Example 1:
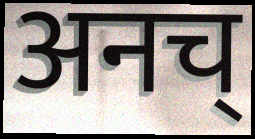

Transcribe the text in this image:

अनच्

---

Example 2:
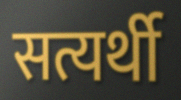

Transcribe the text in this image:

सत्यर्थी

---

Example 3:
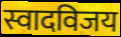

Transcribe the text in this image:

स्वादविजय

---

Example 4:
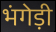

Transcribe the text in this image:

भंगेड़ी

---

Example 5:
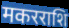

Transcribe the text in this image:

मकरराशि